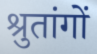
श्रुतांगों